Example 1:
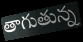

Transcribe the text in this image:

తాగుతున్న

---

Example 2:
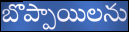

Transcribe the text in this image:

బొప్పాయిలను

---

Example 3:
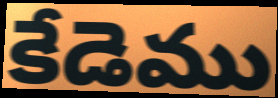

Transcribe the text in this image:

కేడెము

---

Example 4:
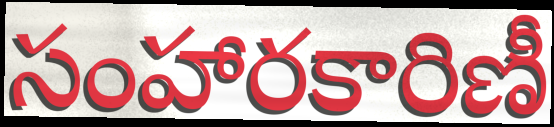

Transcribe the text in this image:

సంహారకారిణీ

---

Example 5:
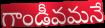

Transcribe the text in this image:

గాండీవమనే